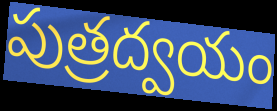
పుత్రద్వయం